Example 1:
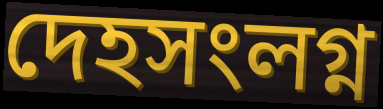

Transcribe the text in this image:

দেহসংলগ্ন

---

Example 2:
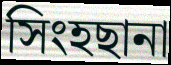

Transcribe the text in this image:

সিংহছানা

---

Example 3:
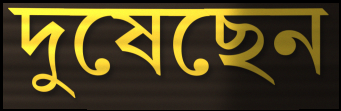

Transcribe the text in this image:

দুষেছেন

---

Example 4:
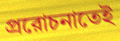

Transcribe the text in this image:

প্ররোচনাতেই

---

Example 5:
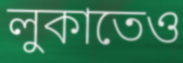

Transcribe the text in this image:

লুকাতেও